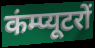
कंम्प्यूटरों